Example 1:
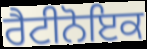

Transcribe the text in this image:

ਰੈਟੀਨੋਇਕ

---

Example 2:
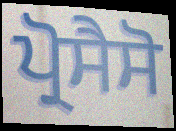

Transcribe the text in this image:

ਪ੍ਰੋਸੈਸੋ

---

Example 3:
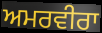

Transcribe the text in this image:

ਅਮਰਵੀਰਾ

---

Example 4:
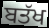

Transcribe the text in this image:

ਬਤੱਖ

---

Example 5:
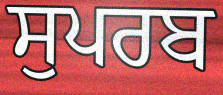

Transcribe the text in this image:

ਸੁਪਰਬ